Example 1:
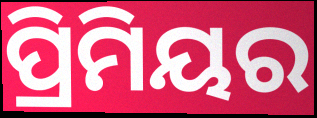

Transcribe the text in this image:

ପ୍ରିମିୟର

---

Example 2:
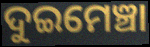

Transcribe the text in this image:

ଦୁଇମେଞ୍ଚା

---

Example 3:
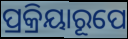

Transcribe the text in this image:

ପ୍ରକ୍ରିୟାରୂପେ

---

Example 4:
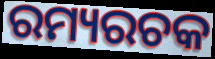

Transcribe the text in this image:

ରମ୍ୟରଚକ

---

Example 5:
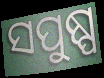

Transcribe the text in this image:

ସପୁଷ୍ପ